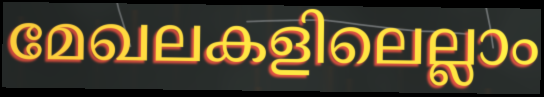
മേഖലകളിലെല്ലാം